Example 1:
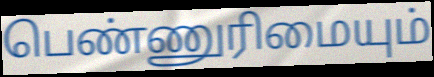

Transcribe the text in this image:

பெண்ணுரிமையும்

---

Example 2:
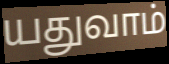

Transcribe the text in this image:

யதுவாம்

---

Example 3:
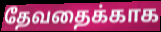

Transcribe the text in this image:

தேவதைக்காக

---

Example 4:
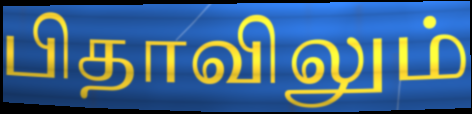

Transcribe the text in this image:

பிதாவிலும்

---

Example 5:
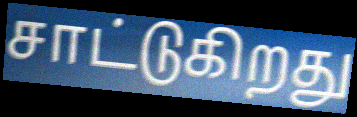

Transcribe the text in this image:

சாட்டுகிறது